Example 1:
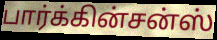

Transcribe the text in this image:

பார்க்கின்சன்ஸ்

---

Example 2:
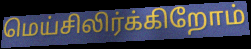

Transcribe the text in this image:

மெய்சிலிர்க்கிறோம்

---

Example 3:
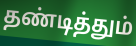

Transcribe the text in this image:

தண்டித்தும்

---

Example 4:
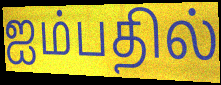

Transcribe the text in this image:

ஐம்பதில்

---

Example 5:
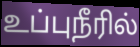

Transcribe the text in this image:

உப்புநீரில்